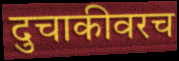
दुचाकीवरच